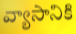
వ్యాసానికి